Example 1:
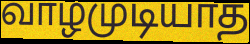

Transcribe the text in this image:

வாழமுடியாத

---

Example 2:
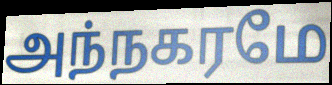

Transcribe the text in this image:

அந்நகரமே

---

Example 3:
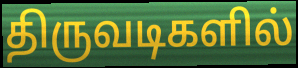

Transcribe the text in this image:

திருவடிகளில்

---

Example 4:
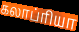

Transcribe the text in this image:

கலாப்ரியா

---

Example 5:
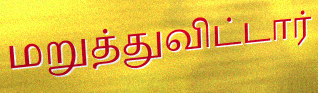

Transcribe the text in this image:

மறுத்துவிட்டார்